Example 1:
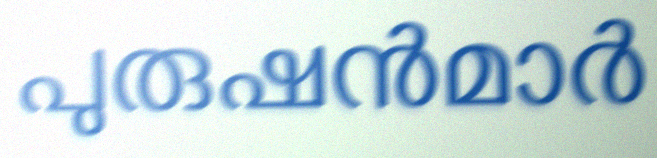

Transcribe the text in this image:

പുരുഷൻമാർ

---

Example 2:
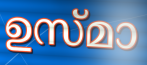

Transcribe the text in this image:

ഉസ്മാ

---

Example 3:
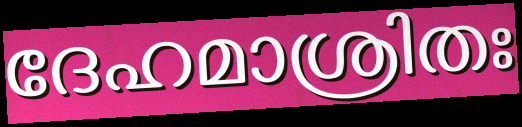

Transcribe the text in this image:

ദേഹമാശ്രിതഃ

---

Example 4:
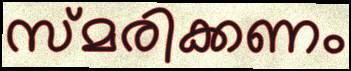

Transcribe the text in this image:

സ്മരിക്കണം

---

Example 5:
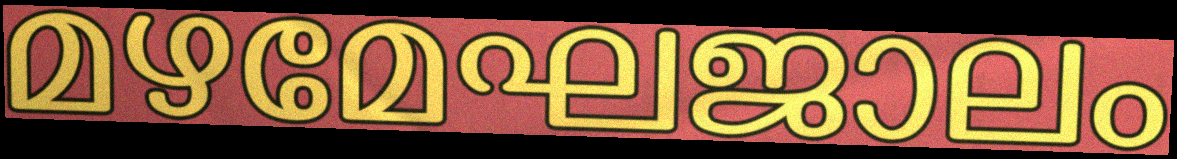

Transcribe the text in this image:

മഴമേഘജാലം